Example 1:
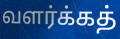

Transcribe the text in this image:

வளர்க்கத்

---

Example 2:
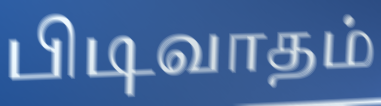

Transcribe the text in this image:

பிடிவாதம்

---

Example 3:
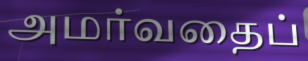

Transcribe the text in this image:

அமர்வதைப்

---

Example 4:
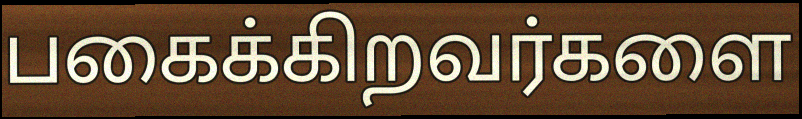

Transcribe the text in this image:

பகைக்கிறவர்களை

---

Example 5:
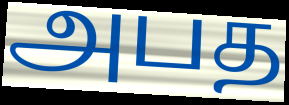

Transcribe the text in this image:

அபத